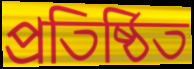
প্রতিষ্ঠিত